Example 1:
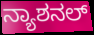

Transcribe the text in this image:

ನ್ಯಾಶನಲ್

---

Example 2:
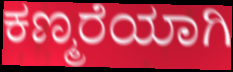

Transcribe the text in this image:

ಕಣ್ಮರೆಯಾಗಿ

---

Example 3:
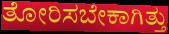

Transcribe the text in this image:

ತೋರಿಸಬೇಕಾಗಿತ್ತು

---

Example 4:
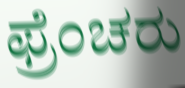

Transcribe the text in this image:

ಫ್ರೆಂಚರು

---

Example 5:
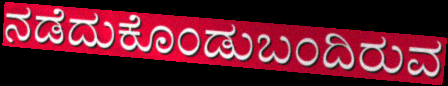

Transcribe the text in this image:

ನಡೆದುಕೊಂಡುಬಂದಿರುವ